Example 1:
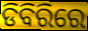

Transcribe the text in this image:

ଡିବିରିରେ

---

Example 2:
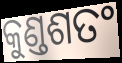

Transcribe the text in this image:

କୁଣ୍ଡଶତଂ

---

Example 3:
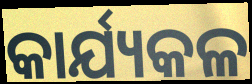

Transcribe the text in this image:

କାର୍ଯ୍ୟକଳ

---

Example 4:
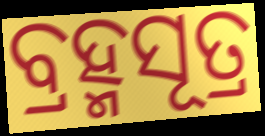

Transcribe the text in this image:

ବ୍ରହ୍ମସୂତ୍ର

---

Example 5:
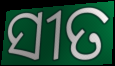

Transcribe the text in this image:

ସୀତ